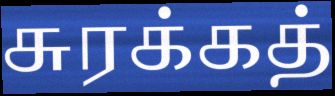
சுரக்கத்